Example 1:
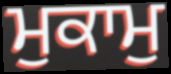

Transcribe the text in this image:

ਮੁਕਾਮੁ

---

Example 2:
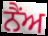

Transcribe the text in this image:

ਨੈਂਅ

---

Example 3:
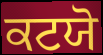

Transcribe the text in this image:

ਕਟਯੋ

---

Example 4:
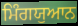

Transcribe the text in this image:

ਮਿੰਗਯੁਆਨ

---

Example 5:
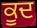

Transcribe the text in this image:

ਕੂਦ